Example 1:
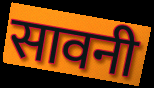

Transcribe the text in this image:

सावनी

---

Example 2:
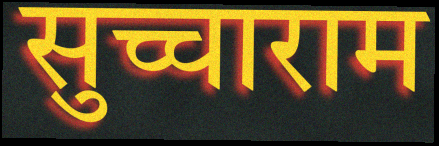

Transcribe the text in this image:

सुच्चाराम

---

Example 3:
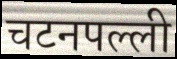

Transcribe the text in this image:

चटनपल्ली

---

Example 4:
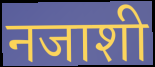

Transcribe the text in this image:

नजाशी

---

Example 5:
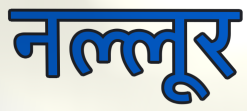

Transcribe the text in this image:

नल्लूर